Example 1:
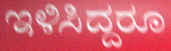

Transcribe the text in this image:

ಇಳಿಸಿದ್ದರೂ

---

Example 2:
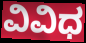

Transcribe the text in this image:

ವಿವಿಧ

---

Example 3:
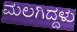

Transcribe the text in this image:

ಮಲಗಿದ್ದಳು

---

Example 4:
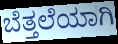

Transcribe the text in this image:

ಬೆತ್ತಲೆಯಾಗಿ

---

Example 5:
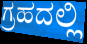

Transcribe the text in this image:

ಗ್ರಹದಲ್ಲಿ